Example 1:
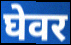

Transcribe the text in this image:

घेवर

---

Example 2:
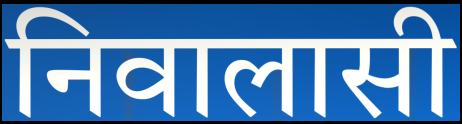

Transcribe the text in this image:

निवालासी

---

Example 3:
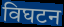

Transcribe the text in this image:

विघटन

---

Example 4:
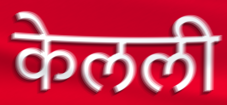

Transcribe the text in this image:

केलली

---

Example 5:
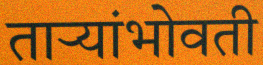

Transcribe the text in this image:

ताऱ्यांभोवती